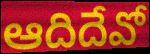
ఆదిదేవో